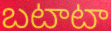
బటాటా